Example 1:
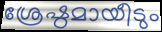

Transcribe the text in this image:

ശ്രേഷ്ഠമായീടും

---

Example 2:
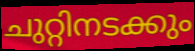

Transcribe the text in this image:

ചുറ്റിനടക്കും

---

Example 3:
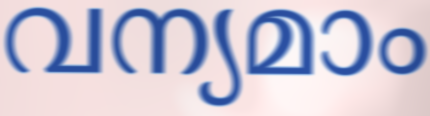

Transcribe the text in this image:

വന്യമാം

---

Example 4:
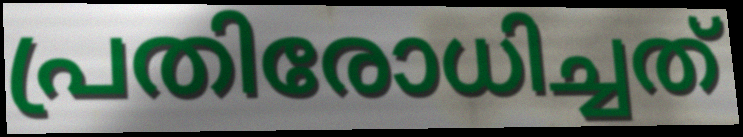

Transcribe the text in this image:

പ്രതിരോധിച്ചത്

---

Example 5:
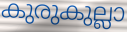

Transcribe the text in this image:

കുരുകുല്ലാ